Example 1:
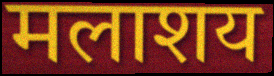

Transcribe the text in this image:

मलाशय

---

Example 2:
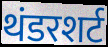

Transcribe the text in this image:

थंडरशर्ट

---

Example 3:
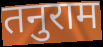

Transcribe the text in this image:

तनुराम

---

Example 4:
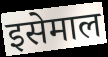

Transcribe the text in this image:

इसेमाल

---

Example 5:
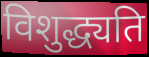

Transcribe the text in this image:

विशुद्ध्यति